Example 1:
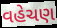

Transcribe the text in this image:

વહેચણ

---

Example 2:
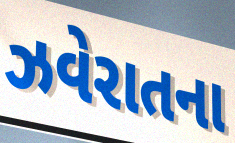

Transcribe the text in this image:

ઝવેરાતના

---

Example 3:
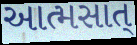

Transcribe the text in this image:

આત્મસાત્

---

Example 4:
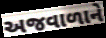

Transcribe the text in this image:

અજવાળાને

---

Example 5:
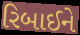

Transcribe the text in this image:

રિબાઈને